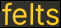
felts